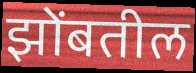
झोंबतील